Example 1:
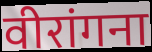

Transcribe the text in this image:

वीरांगना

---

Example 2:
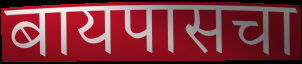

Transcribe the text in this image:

बायपासचा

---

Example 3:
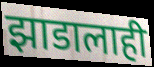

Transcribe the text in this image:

झाडालाही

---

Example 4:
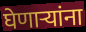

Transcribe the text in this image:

घेणाऱ्यांना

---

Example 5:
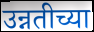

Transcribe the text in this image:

उन्नतीच्या